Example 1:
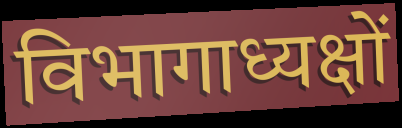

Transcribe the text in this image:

विभागाध्यक्षों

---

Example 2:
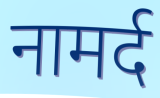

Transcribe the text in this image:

नामर्द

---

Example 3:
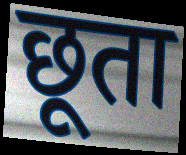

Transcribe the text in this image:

छूता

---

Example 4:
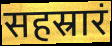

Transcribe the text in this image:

सहस्रारं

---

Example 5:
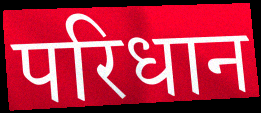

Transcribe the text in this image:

परिधान